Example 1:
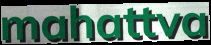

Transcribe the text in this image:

mahattva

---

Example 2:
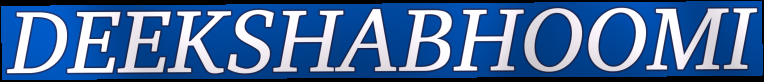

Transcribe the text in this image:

DEEKSHABHOOMI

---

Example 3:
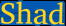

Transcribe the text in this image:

Shad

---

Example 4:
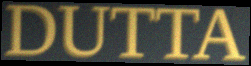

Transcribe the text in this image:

DUTTA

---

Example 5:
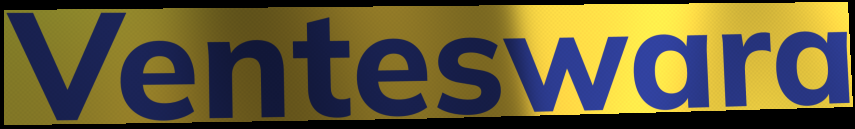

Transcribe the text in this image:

Venteswara